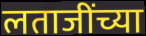
लताजींच्या